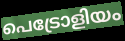
പെട്രോളിയം